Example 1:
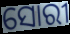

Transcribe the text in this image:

ସୋରୀ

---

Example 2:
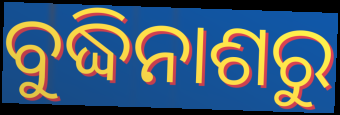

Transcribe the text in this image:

ବୁଦ୍ଧିନାଶରୁ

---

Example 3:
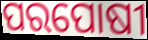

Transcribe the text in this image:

ପରପୋଷୀ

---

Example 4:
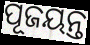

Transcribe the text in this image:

ପୂଜୟନ୍ତ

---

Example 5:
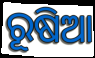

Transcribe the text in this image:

ରୂଷିଆ